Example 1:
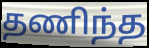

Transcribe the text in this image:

தணிந்த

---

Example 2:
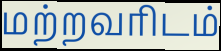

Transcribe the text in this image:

மற்றவரிடம்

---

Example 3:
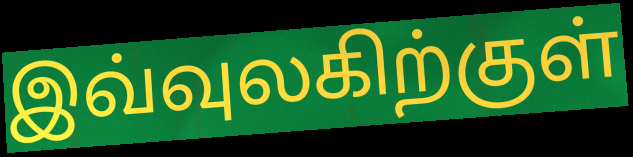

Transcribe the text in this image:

இவ்வுலகிற்குள்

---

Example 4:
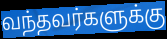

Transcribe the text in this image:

வந்தவர்களுக்கு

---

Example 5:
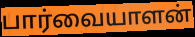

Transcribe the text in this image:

பார்வையாளன்